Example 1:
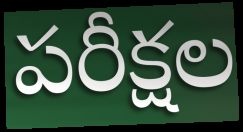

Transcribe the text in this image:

పరీక్షల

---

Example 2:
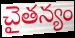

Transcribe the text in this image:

చైతన్యం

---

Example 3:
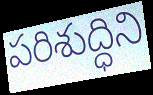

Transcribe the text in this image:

పరిశుద్ధిని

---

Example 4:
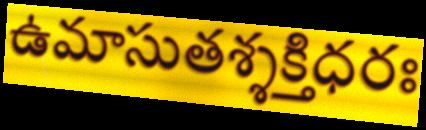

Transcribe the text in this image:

ఉమాసుతశ్శక్తిధరః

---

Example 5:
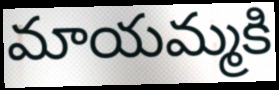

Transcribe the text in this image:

మాయమ్మకి